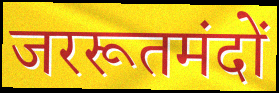
जररूतमंदों